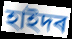
হাইদৰ